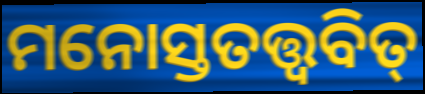
ମନୋସ୍ତତତ୍ତ୍ୱବିତ୍